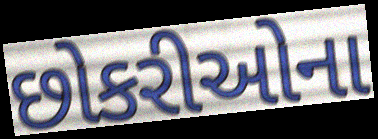
છોકરીઓના